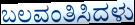
ಬಲವಂತಿಸಿದಳು